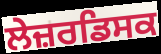
ਲੇਜ਼ਰਡਿਸਕ